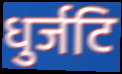
धुर्जटि